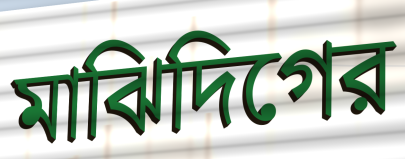
মাঝিদিগের